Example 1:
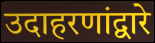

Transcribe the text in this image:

उदाहरणांद्वारे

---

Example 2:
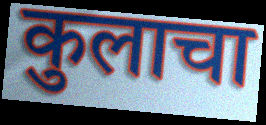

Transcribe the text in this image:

कुलाचा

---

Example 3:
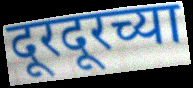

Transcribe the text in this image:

दूरदूरच्या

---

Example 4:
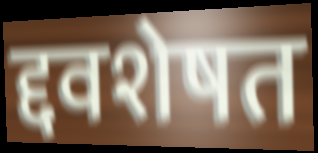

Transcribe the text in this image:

द्दवशेषत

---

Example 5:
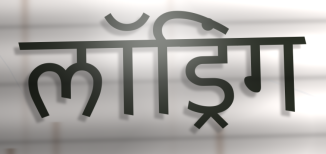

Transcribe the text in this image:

लॉड्रिंग